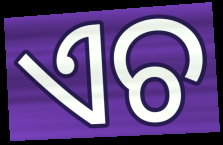
ଏଚ